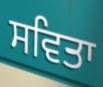
ਸਵਿਤਾ